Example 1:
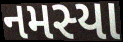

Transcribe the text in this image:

નમસ્યા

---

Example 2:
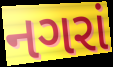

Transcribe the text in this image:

નગરાં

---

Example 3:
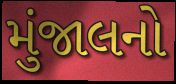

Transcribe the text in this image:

મુંજાલનો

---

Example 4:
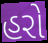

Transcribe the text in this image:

હરો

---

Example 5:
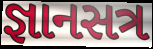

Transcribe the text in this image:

જ્ઞાનસત્ર